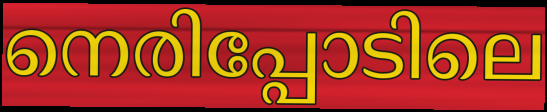
നെരിപ്പോടിലെ